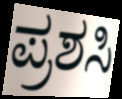
ಪ್ರಶಸಿ